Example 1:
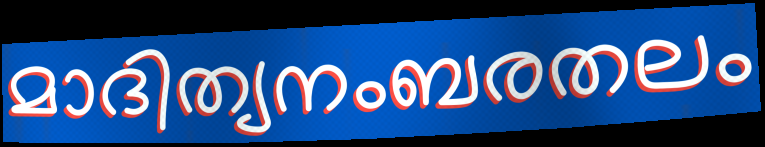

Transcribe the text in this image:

മാദിത്യനംബരതലം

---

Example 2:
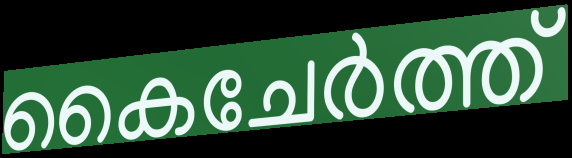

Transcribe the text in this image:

കൈചേർത്ത്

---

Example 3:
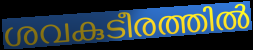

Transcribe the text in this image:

ശവകുടീരത്തിൽ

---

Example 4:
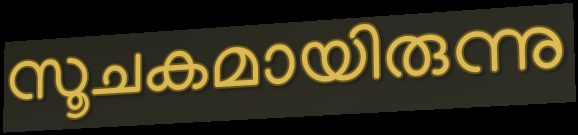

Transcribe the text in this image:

സൂചകമായിരുന്നു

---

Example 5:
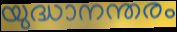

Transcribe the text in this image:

യുദ്ധാനന്തരം